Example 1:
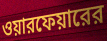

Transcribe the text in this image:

ওয়ারফেয়ারের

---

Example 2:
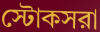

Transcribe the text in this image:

স্টোকসরা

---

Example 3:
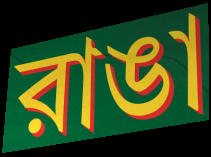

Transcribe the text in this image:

রাঙা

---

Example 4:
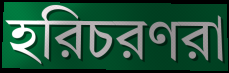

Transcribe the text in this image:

হরিচরণরা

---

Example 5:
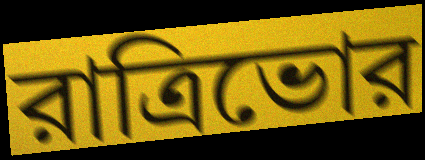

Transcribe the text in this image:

রাত্রিভোর